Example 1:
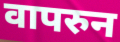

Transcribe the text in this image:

वापरुन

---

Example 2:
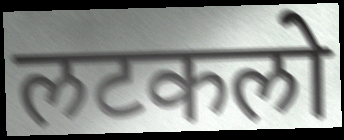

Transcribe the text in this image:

लटकलो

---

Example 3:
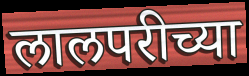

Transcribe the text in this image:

लालपरीच्या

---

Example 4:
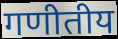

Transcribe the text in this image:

गणीतीय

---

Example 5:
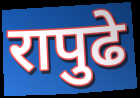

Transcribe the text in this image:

रापुढे